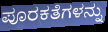
ಪೂರಕತೆಗಳನ್ನು